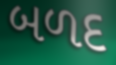
બળદ